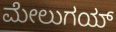
ಮೇಲುಗಯ್